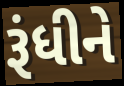
રૂંધીને